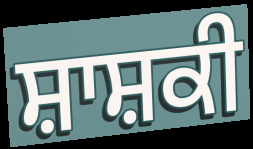
ਸ਼ਾਸ਼ਕੀ